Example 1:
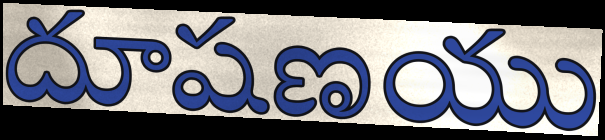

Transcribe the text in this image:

దూషణయు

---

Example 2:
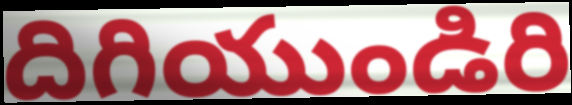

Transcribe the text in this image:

దిగియుండిరి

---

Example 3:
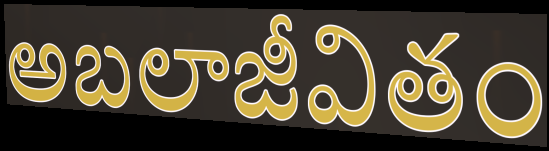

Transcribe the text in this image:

అబలాజీవితం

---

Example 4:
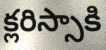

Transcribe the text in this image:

క్లరిస్సాకి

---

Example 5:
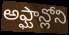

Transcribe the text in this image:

అఫ్ఘాన్లోని